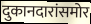
दुकानदारांसमोर